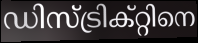
ഡിസ്ട്രിക്റ്റിനെ